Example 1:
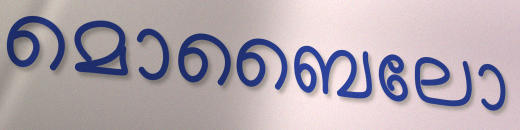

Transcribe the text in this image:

മൊബൈലോ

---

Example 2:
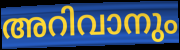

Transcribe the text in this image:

അറിവാനും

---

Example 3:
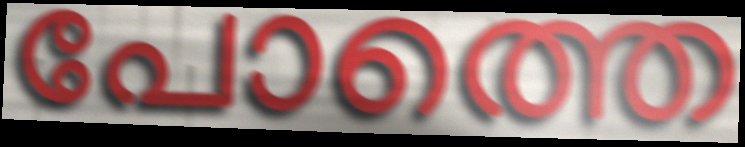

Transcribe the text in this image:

പോത്തെ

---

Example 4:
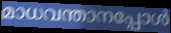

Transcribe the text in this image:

മാധവന്താനപ്പോൾ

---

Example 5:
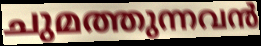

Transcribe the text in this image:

ചുമത്തുന്നവൻ